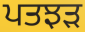
ਪਤਝਡ਼